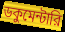
ডকুমেন্টারি